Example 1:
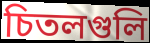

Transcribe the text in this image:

চিতলগুলি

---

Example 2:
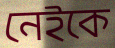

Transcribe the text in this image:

নেইকে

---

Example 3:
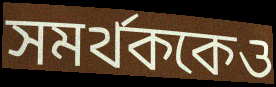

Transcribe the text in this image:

সমর্থককেও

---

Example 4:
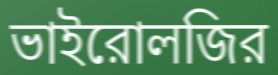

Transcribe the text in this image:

ভাইরোলজির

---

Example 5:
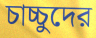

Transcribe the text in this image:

চাচ্চুদের